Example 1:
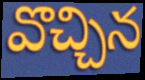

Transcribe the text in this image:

వొచ్చిన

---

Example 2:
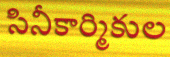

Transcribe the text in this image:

సినీకార్మికుల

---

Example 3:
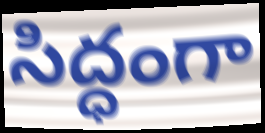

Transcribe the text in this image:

సిద్ధంగా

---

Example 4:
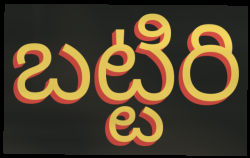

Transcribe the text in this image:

బట్టిరి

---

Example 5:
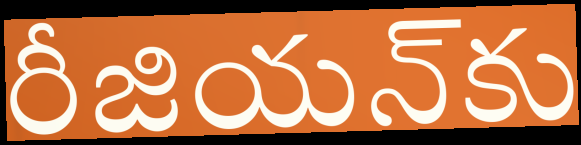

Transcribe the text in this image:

రీజియన్‌కు